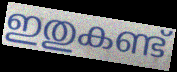
ഇതുകണ്ട്